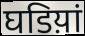
घडिय़ां